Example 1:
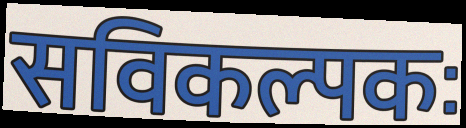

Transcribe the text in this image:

सविकल्पकः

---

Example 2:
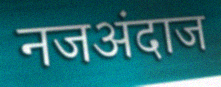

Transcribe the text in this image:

नजअंदाज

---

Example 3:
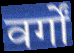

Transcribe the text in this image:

वर्गों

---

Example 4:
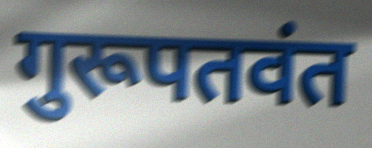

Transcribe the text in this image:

गुरूपतवंत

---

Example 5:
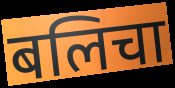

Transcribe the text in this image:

बलिचा